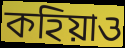
কহিয়াও